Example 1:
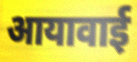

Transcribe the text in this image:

आयावाई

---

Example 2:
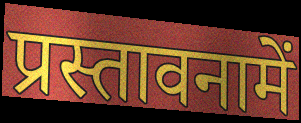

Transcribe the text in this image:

प्रस्तावनामें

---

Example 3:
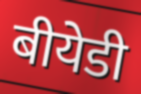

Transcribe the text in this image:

बीयेडी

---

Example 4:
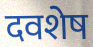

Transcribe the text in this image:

दवशेष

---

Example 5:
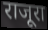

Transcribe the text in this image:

राजूरा